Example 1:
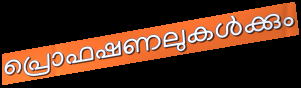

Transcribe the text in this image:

പ്രൊഫഷണലുകൾക്കും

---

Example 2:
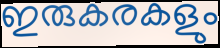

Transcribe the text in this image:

ഇരുകരകളും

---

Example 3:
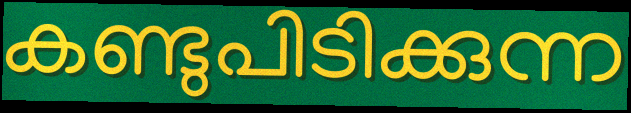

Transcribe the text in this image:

കണ്ടുപിടിക്കുന്ന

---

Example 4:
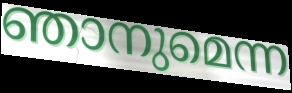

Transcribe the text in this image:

ഞാനുമെന്ന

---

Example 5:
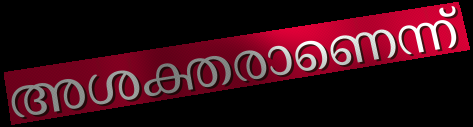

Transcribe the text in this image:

അശക്തരാണെന്ന്